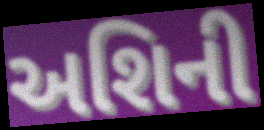
અશિની